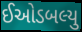
ઈઓડબલ્યુ